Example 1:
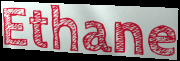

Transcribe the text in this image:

Ethane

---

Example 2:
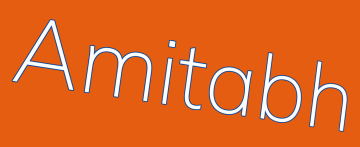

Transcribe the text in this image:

Amitabh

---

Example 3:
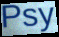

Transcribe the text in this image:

Psy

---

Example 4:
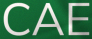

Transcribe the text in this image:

CAE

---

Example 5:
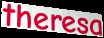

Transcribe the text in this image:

theresa